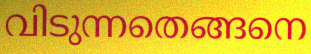
വിടുന്നതെങ്ങനെ